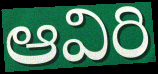
ఆవిరి